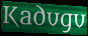
Kadugu